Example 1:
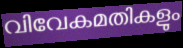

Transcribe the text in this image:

വിവേകമതികളും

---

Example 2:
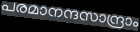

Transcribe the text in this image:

പരമാനന്ദസാന്ദ്രാം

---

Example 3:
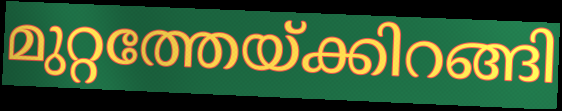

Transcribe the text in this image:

മുറ്റത്തേയ്ക്കിറങ്ങി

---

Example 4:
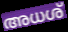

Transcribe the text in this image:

അധശ്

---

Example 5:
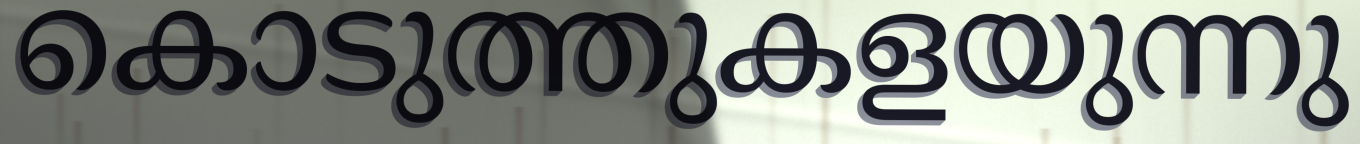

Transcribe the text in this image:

കൊടുത്തുകളയുന്നു